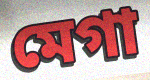
মেগা